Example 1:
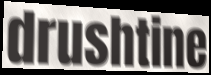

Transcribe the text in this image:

drushtine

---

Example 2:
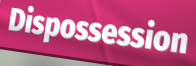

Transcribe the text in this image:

Dispossession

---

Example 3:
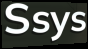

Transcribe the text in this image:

Ssys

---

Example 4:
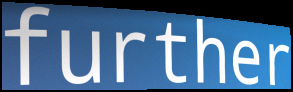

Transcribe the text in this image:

further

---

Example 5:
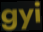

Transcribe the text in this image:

gyi